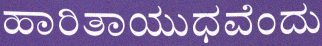
ಹಾರಿತಾಯುಧವೆಂದು